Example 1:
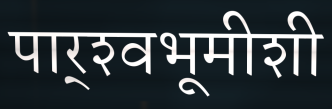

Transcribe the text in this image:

पार्श्वभूमीशी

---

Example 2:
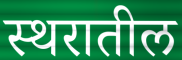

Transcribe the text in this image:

स्थरातील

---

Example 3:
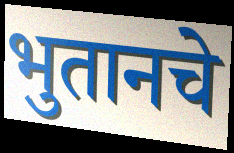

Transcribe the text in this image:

भुतानचे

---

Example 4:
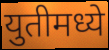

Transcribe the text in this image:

युतीमध्ये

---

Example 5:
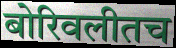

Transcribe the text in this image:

बोरिवलीतच